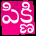
పిక్ణి